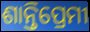
ଶାନ୍ତିପ୍ରେମୀ